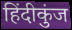
हिंदीकुंज